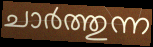
ചാർത്തുന്ന